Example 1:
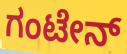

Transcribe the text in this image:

ಗಂಟೇನ್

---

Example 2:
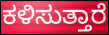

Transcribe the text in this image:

ಕಳಿಸುತ್ತಾರೆ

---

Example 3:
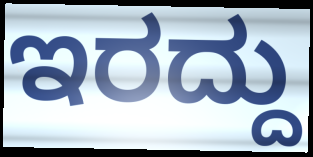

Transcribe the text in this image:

ಇರದ್ದು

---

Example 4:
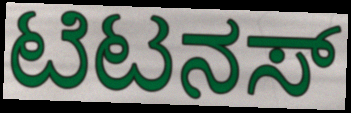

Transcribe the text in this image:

ಟೆಟನಸ್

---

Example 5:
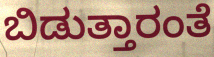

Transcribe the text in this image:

ಬಿಡುತ್ತಾರಂತೆ